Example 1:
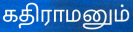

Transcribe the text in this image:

கதிராமனும்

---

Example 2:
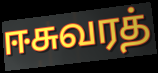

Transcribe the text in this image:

ஈசுவரத்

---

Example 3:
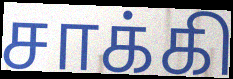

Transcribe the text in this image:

சாக்கி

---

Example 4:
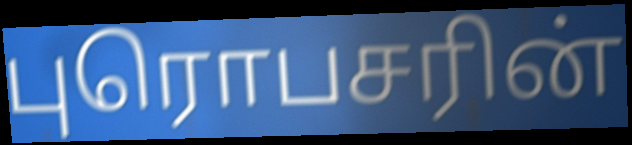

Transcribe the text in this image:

புரொபசரின்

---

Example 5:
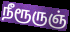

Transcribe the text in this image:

நீரூருஞ்